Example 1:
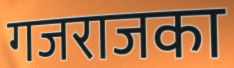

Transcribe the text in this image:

गजराजका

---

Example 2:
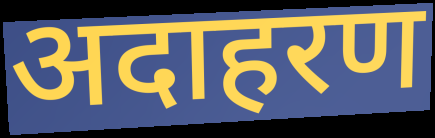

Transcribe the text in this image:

अदाहरण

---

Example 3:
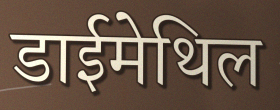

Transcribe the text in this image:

डाईमेथिल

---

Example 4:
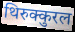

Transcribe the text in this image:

थिरुक्कुरल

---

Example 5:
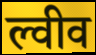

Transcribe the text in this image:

ल्वीव